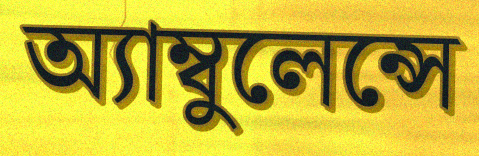
অ্যাম্বুলেন্সে